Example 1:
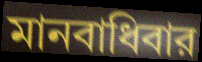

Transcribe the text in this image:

মানবাধিবার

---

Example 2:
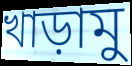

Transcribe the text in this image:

খাড়ামু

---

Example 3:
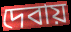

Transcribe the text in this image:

দেবায়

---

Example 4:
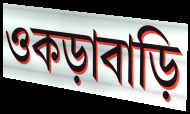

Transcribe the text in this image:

ওকড়াবাড়ি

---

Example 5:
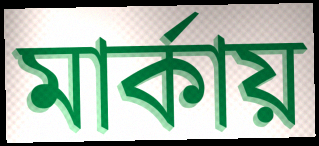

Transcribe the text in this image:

মার্কায়